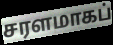
சரளமாகப்